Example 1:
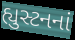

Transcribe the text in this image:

હ્યુસ્ટનનાં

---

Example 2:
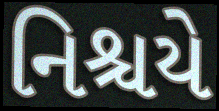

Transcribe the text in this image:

નિશ્ચયે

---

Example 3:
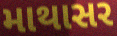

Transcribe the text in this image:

માથાસર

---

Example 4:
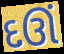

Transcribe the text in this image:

દઊં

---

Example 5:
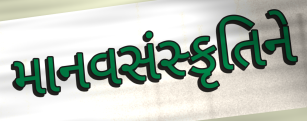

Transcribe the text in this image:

માનવસંસ્કૃતિને